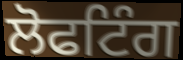
ਲੋਫਟਿੰਗ